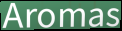
Aromas